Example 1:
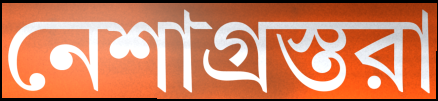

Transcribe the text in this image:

নেশাগ্রস্তরা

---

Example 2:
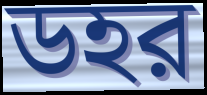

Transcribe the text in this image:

ডহর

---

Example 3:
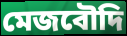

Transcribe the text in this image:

মেজবৌদি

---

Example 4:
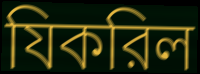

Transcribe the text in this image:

যিকরিল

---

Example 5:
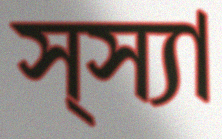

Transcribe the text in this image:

স্স্যা